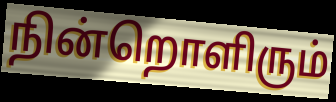
நின்றொளிரும்